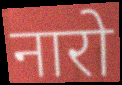
नारो